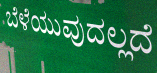
ಬೆಳೆಯುವುದಲ್ಲದೆ